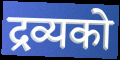
द्रव्यको